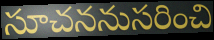
సూచననుసరించి